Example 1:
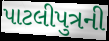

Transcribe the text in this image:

પાટલીપુત્રની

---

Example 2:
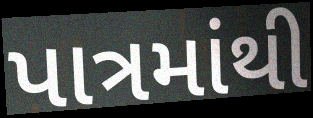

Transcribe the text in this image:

પાત્રમાંથી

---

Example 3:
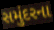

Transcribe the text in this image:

સમુંદરના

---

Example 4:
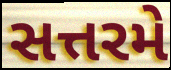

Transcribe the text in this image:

સત્તરમે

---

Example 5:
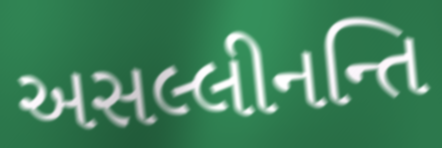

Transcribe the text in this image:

અસલ્લીનન્તિ